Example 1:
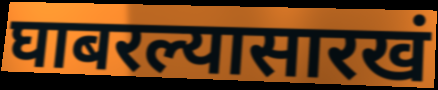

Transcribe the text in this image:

घाबरल्यासारखं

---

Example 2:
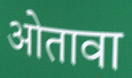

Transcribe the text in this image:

ओतावा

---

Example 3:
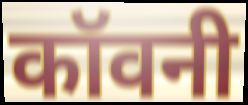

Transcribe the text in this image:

कॉवनी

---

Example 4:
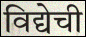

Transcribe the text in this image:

विद्येची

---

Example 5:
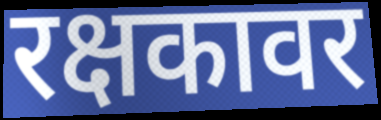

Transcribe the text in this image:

रक्षकावर